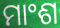
ମାଂଶ